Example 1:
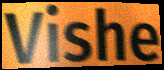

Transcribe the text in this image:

Vishe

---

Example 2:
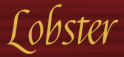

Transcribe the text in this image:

Lobster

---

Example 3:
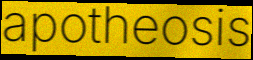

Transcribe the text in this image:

apotheosis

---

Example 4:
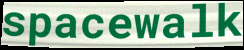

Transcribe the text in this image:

spacewalk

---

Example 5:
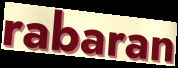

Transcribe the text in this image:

rabaran